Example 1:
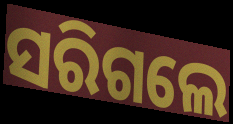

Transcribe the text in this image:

ସରିଗଲେ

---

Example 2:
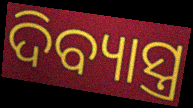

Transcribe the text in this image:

ଦିବ୍ୟାସ୍ତ୍ର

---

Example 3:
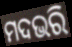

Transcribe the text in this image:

ମଦଭରି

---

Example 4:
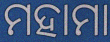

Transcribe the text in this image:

ମହାମା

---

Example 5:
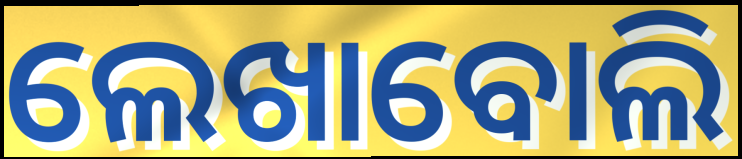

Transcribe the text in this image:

ଲେଖାବୋଲି